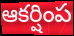
ఆకర్షింప